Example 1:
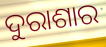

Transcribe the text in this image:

ଦୁରାଶାର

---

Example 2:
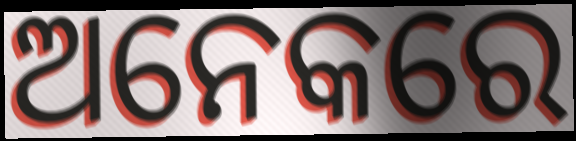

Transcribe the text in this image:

ଅନେକରେ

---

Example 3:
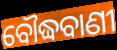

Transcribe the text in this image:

ବୌଦ୍ଧବାଣୀ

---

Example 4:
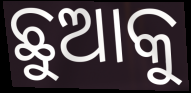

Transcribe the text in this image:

ଛୁଆକୁ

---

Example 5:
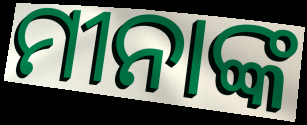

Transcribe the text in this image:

ମୀନାଙ୍କ